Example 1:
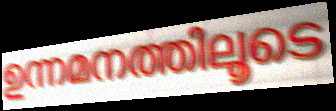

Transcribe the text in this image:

ഉന്നമനത്തിലൂടെ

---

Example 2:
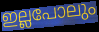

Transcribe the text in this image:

ഇല്ലപോലും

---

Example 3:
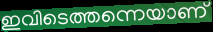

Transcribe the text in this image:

ഇവിടെത്തന്നെയാണ്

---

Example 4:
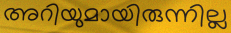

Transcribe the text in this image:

അറിയുമായിരുന്നില്ല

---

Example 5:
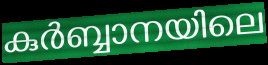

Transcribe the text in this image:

കുർബ്ബാനയിലെ